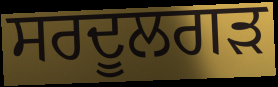
ਸਰਦੂਲਗੜ